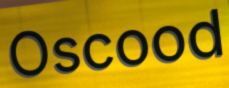
Oscood